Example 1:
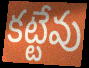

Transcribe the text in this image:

కట్టేవు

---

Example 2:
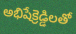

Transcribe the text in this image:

అభిషేక్రెడ్డిలతో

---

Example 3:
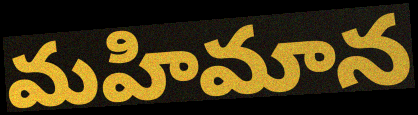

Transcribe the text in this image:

మహిమాన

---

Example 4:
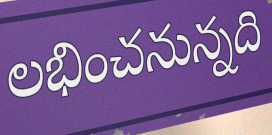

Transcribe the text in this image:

లభించనున్నది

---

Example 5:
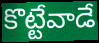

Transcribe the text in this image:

కొట్టేవాడే